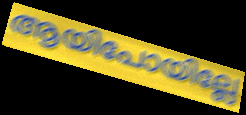
ആയിപോയില്ലേ